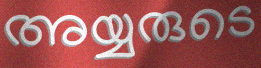
അയ്യരുടെ